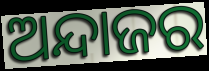
ଅନ୍ଦାଜର